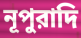
নূপুরাদি